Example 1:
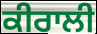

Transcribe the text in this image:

ਕੀਰਾਲੀ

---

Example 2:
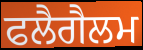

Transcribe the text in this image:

ਫਲੈਗੈਲਮ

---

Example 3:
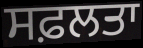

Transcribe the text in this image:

ਸਫ਼ਲਤਾ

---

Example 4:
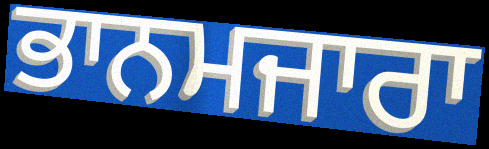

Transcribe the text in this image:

ਭਾਨਮਜਾਰਾ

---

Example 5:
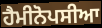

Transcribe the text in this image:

ਹੈਮੀਨੋਪਸੀਆ